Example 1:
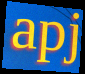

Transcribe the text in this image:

apj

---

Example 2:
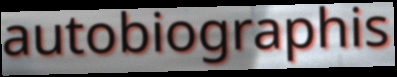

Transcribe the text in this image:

autobiographis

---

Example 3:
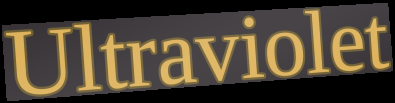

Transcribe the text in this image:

Ultraviolet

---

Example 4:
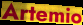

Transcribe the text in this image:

Artemio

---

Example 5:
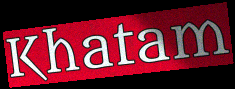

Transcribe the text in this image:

Khatam